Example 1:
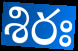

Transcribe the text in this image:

శిరః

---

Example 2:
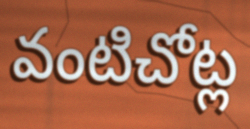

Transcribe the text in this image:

వంటిచోట్ల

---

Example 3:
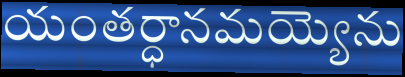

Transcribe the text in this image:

యంతర్ధానమయ్యెను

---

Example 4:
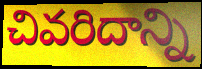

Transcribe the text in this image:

చివరిదాన్ని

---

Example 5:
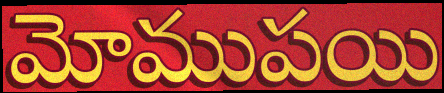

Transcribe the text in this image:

మోముపయి